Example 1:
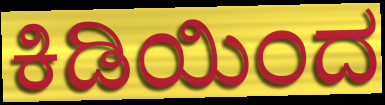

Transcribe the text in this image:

ಕಿಡಿಯಿಂದ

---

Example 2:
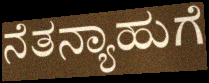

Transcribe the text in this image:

ನೆತನ್ಯಾಹುಗೆ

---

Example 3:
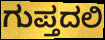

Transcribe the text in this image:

ಗುಪ್ತದಲಿ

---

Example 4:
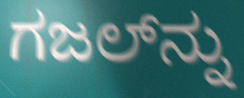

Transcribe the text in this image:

ಗಜಲ್‍ನ್ನು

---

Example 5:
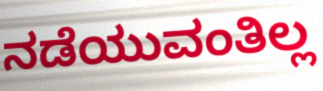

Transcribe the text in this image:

ನಡೆಯುವಂತಿಲ್ಲ